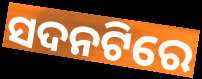
ସଦନଟିରେ